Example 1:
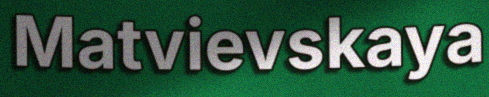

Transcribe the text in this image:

Matvievskaya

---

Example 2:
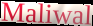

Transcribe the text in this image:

Maliwal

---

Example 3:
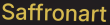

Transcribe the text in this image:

Saffronart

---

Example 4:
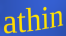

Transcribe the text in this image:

athin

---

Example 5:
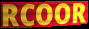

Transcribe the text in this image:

RCOOR